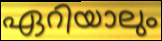
ഏറിയാലും